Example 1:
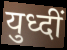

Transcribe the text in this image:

युध्दीं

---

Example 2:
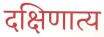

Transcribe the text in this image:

दक्षिणात्य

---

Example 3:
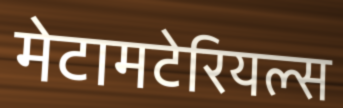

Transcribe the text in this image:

मेटामटेरियल्स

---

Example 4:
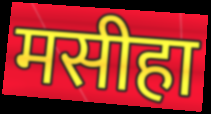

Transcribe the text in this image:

मसीहा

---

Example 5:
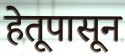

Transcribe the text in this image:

हेतूपासून